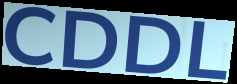
CDDL